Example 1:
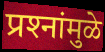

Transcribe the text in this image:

प्रश्‍नांमुळे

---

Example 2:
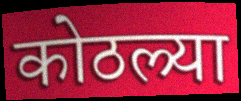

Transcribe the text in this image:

कोठल्या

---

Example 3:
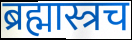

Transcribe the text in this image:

ब्रह्मास्त्रच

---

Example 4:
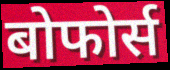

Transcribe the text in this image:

बोफोर्स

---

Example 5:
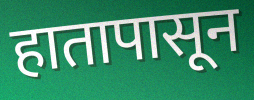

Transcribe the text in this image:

हातापासून